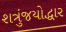
શત્રુંજયોદ્ધાર